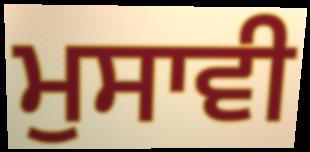
ਮੁਸਾਵੀ